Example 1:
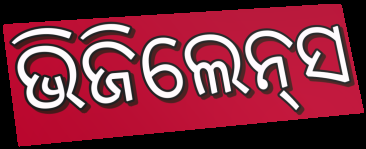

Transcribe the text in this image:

ଭିଜିଲେନ୍‌ସ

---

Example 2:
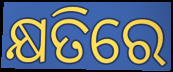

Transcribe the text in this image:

କ୍ଷତିରେ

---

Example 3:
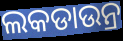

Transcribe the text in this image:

ଲକଡାଉନ୍ର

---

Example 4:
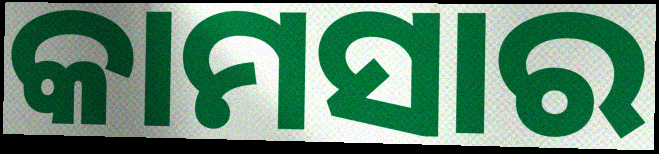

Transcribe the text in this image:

କାମସାର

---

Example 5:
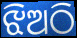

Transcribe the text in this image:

ଝିଅଠି